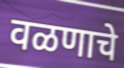
वळणाचे